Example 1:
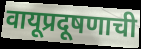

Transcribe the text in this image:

वायूप्रदूषणाची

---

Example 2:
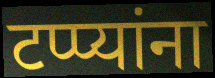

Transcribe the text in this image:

टप्प्यांना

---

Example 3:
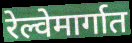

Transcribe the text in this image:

रेल्वेमार्गात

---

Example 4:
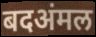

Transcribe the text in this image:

बदअंमल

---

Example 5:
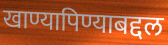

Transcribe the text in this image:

खाण्यापिण्याबद्दल